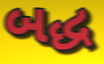
બદ્ધ